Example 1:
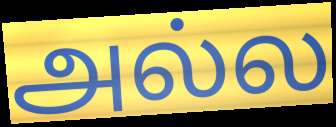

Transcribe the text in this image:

அல்ல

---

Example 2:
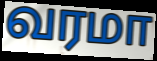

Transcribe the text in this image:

வரமா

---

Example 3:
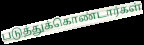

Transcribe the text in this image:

படுத்துக்கொண்டார்கள்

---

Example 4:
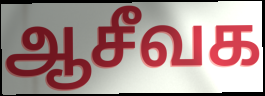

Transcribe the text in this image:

ஆசீவக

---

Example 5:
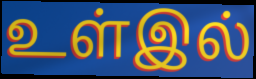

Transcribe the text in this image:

உள்இல்